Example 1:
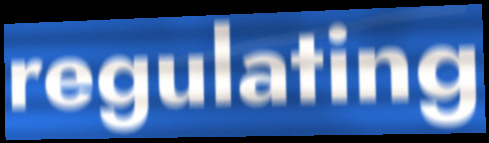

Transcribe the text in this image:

regulating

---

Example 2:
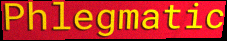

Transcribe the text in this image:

Phlegmatic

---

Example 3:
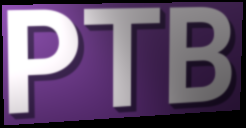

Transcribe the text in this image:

PTB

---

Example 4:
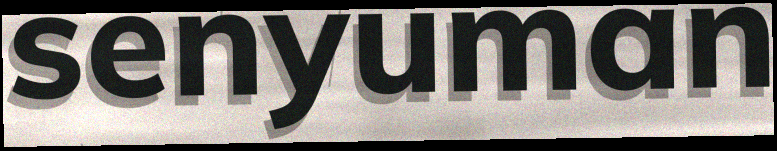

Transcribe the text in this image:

senyuman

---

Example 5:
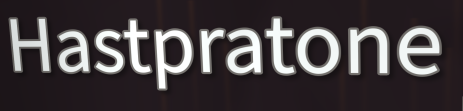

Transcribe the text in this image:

Hastpratone